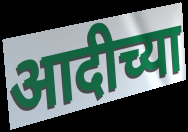
आदीच्या